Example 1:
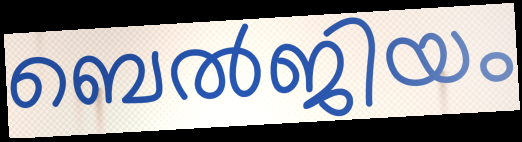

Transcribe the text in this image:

ബെൽജിയം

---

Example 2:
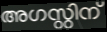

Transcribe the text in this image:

അഗസ്റ്റിന്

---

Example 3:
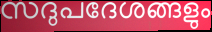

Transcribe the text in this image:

സദുപദേശങ്ങളും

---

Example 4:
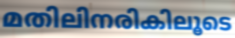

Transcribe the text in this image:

മതിലിനരികിലൂടെ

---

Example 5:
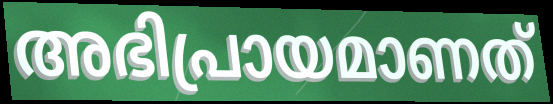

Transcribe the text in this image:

അഭിപ്രായമാണത്